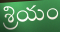
శ్రియం